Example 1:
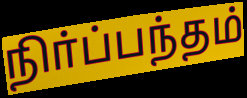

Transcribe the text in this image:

நிர்ப்பந்தம்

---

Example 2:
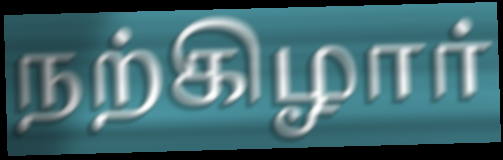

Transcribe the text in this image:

நற்கிழார்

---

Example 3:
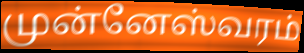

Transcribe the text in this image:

முன்னேஸ்வரம்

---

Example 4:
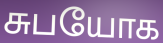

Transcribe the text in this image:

சுபயோக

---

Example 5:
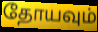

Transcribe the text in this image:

தோயவும்